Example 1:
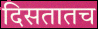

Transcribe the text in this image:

दिसतातच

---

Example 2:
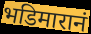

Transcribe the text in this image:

भडिमारानं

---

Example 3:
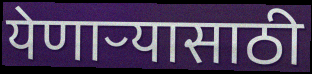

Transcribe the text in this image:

येणाऱ्यासाठी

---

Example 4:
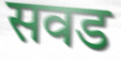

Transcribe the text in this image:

सवड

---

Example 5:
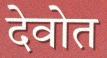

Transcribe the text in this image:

देवोत